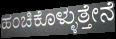
ಹಂಚಿಕೊಳ್ಳುತ್ತೇನೆ